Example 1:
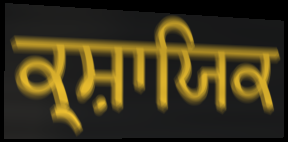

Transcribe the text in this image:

ਕ੍ਸ਼ਾਯਿਕ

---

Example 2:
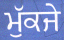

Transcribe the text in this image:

ਮੁੱਕਜੇ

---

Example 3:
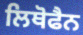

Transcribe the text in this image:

ਲਿਥੋਫੈਨ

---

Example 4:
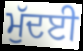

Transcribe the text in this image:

ਮੁੱਦਈ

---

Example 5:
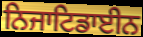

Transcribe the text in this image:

ਨਿਜਾਟਿਡਾਈਨ